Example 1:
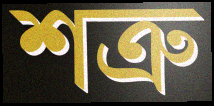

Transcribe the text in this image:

শত্রু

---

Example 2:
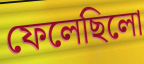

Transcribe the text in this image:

ফেলেছিলো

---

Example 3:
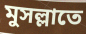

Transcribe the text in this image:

মুসল্লাতে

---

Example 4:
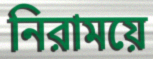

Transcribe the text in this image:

নিরাময়ে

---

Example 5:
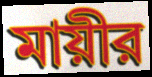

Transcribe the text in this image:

মায়ীর